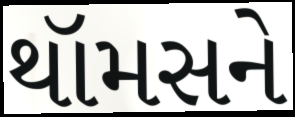
થૉમસને